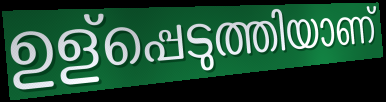
ഉള്പ്പെടുത്തിയാണ്